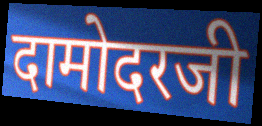
दामोदरजी